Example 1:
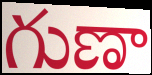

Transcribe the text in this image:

గుణా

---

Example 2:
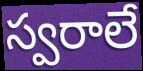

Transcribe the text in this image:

స్వరాలే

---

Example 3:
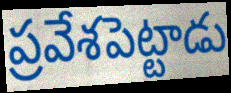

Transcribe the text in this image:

ప్రవేశపెట్టాడు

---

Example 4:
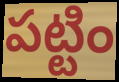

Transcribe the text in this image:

పట్టిం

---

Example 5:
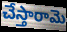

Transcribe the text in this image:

చేస్తారామె